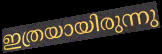
ഇത്രയായിരുന്നു